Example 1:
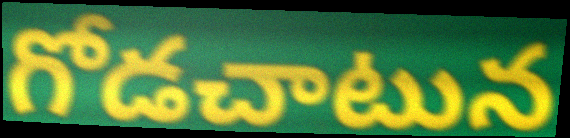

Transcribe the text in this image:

గోడచాటున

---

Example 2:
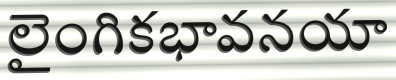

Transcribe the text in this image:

లైంగికభావనయా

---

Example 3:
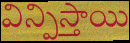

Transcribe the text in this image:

విన్పిస్తాయి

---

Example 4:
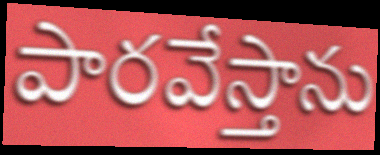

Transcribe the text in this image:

పారవేస్తాను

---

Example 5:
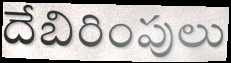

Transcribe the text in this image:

దేబిరింపులు